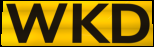
WKD